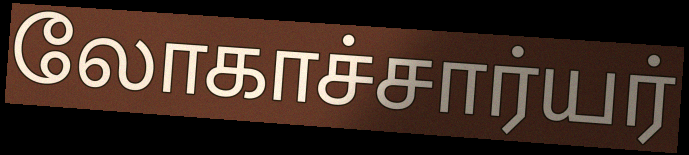
லோகாச்சார்யர்